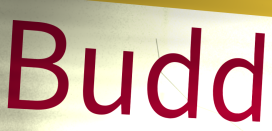
Budd